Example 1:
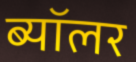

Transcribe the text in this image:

ब्यॉलर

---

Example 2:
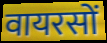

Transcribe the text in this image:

वायरसों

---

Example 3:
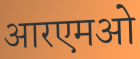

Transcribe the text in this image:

आरएमओ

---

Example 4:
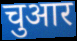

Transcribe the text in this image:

चुआर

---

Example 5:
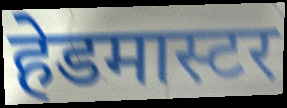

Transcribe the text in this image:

हेडमास्टर